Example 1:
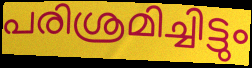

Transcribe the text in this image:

പരിശ്രമിച്ചിട്ടും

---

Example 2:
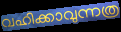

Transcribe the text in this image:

വഹിക്കാവുന്നത്ര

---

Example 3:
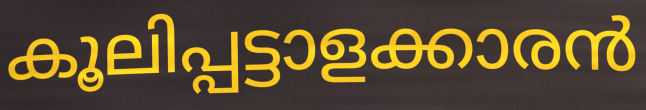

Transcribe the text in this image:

കൂലിപ്പട്ടാളക്കാരൻ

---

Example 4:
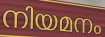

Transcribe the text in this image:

നിയമനം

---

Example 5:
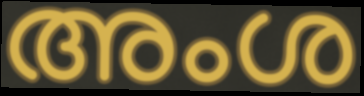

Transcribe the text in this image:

അംശ